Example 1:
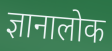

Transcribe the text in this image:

ज्ञानालोक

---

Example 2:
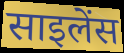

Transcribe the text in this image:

साइलेंस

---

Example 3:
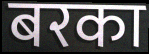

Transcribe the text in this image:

बरका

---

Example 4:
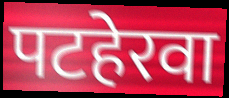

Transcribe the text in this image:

पटहेरवा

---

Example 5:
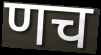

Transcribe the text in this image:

णच